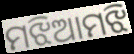
ମଝିଆମଝି